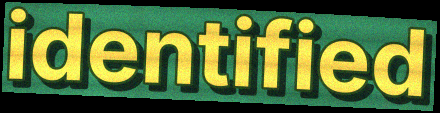
identified